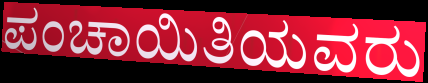
ಪಂಚಾಯಿತಿಯವರು